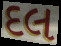
દલ